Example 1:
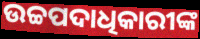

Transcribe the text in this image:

ଉଚ୍ଚପଦାଧିକାରୀଙ୍କ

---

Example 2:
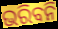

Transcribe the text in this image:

ଭରିବନି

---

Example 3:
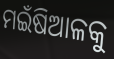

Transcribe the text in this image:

ମଇଁଷିଆଳକୁ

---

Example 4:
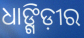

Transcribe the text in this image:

ଧାଙ୍ଗିଡ଼ୀର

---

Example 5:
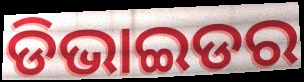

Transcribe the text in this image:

ଡିଭାଇଡର